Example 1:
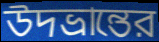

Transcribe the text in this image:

উদভ্রান্তের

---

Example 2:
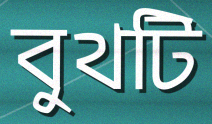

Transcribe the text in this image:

বুথটি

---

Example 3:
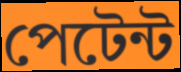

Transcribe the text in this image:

পেটেন্ট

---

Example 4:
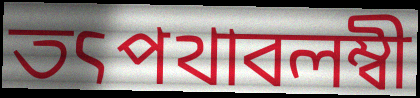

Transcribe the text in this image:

তৎপথাবলম্বী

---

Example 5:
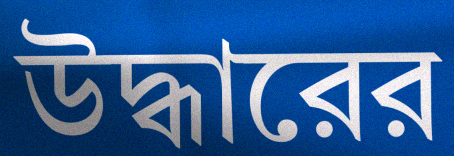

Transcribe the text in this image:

উদ্ধারের